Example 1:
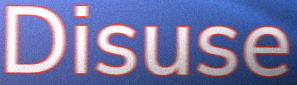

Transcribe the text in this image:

Disuse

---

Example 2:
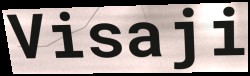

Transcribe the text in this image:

Visaji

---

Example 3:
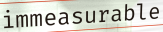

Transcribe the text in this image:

immeasurable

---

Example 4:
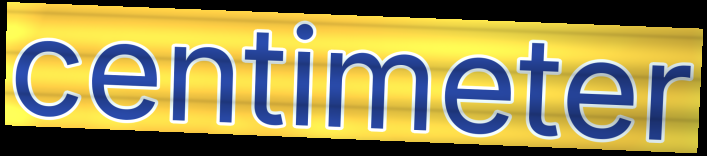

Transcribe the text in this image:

centimeter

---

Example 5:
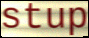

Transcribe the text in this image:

stup